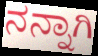
ನನ್ನಾಗಿ